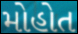
મોહોત